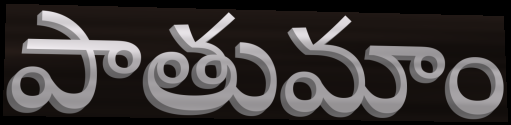
పాతుమాం